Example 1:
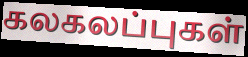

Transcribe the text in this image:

கலகலப்புகள்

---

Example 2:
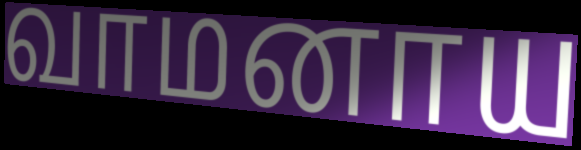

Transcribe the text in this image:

வாமனாய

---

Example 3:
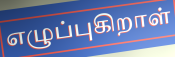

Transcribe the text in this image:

எழுப்புகிறாள்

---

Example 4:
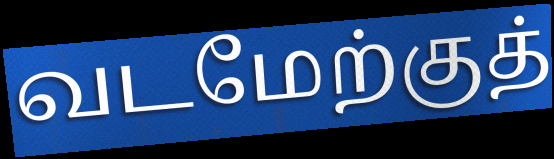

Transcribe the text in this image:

வடமேற்குத்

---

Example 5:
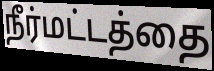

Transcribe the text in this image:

நீர்மட்டத்தை